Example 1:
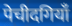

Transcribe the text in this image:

पेचीदगियाँ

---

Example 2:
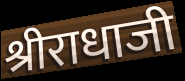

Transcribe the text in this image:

श्रीराधाजी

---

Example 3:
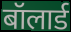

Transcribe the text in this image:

बॉलार्ड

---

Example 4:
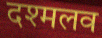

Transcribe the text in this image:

दश्मलव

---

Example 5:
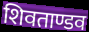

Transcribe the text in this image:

शिवताण्डव